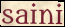
saini